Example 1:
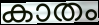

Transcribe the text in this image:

കാതം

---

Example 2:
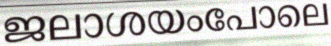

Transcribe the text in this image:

ജലാശയംപോലെ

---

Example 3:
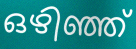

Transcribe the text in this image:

ഒഴിഞ്ഞ്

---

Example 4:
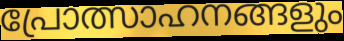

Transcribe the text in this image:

പ്രോത്സാഹനങ്ങളും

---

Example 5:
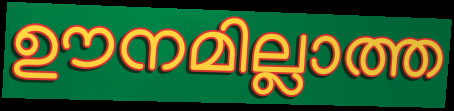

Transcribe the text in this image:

ഊനമില്ലാത്ത